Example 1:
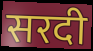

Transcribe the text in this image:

सरदी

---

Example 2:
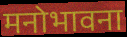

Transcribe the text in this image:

मनोभावना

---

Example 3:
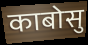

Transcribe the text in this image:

काबोसु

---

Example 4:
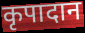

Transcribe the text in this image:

कृपादान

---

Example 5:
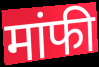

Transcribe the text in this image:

मांफी